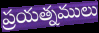
ప్రయత్నములు